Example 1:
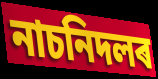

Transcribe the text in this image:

নাচনিদলৰ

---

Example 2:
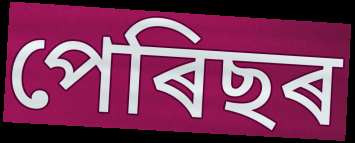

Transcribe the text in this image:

পেৰিছৰ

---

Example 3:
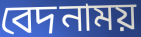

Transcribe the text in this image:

বেদনাময়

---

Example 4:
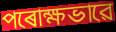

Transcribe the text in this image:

পৰোক্ষভাৱে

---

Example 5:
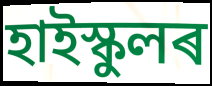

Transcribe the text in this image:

হাইস্কুলৰ